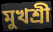
মুখশ্রী